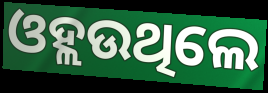
ଓହ୍ଲଉଥିଲେ